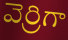
వెర్రిగా